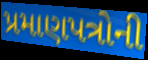
પ્રમાણપત્રોની